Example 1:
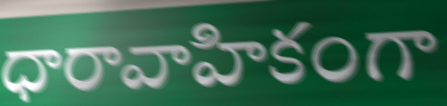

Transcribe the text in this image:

ధారావాహికంగా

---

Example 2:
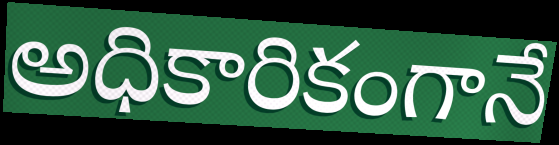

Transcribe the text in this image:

అధికారికంగానే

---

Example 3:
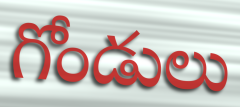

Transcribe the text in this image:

గోండులు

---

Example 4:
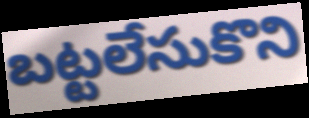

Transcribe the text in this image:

బట్టలేసుకొని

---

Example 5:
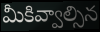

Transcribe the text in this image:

మీకివ్వాల్సిన